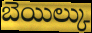
బెయిల్కు